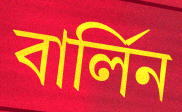
বাৰ্লিন